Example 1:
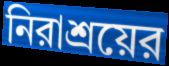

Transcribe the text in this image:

নিরাশ্রয়ের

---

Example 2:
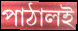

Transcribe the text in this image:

পাঠালই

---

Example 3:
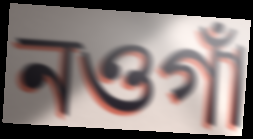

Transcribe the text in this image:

নওগাঁ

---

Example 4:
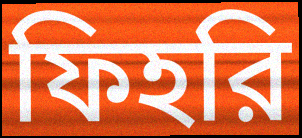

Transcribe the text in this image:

ফিহরি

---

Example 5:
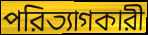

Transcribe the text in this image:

পরিত্যাগকারী